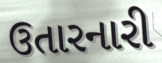
ઉતારનારી